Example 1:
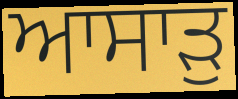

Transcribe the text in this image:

ਆਸਾੜੁ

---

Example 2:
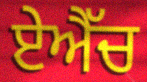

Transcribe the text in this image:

ਏਐੱਚ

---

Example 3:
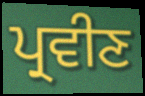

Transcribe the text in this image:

ਪ੍ਰਵੀਣ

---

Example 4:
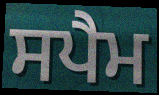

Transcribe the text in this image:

ਸਪੈਮ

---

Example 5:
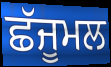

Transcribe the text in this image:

ਛੱਜੂਮਲ